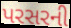
પરસરની